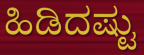
ಹಿಡಿದಷ್ಟು